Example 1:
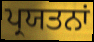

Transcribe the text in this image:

ਪ੍ਰਯਤਨਾਂ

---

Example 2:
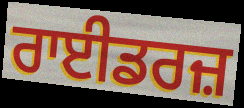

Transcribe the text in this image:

ਰਾਈਡਰਜ਼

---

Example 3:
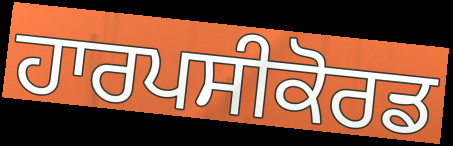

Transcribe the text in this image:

ਹਾਰਪਸੀਕੋਰਡ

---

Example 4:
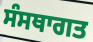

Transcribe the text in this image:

ਸੰਸਥਾਗਤ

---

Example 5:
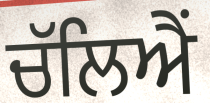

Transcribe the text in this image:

ਚੱਲਿਐਂ